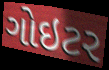
ગોઇટર